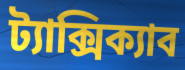
ট্যাক্সিক্যাব